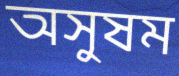
অসুষম